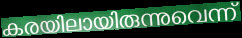
കരയിലായിരുന്നുവെന്ന്